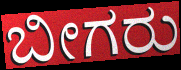
ಬೀಗರು